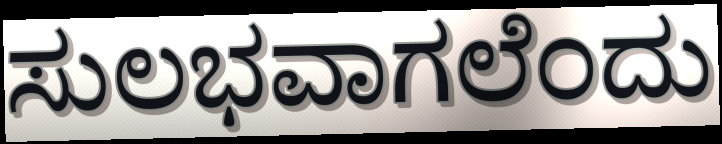
ಸುಲಭವಾಗಲೆಂದು